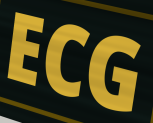
ECG